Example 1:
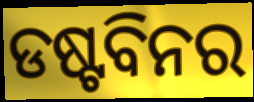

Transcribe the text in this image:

ଡଷ୍ଟବିନର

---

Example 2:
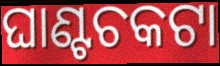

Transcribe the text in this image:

ଘାଣ୍ଟଚକଟା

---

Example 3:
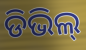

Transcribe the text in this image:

ଡିଭିଲ୍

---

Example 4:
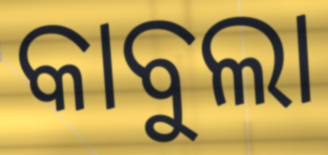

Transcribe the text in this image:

କାବୁଲା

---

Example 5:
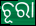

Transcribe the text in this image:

ଚୂରା